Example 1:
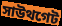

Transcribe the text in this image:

সাউথগেট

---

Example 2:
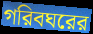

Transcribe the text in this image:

গরিবঘরের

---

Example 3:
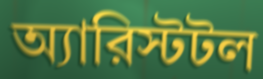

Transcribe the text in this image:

অ্যারিস্টটল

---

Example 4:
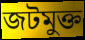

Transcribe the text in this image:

জটমুক্ত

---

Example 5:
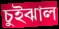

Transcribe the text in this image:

চুইঝাল